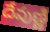
దేవుణ్ణి